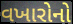
વખારોનો